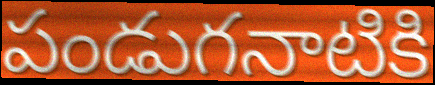
పండుగనాటికి